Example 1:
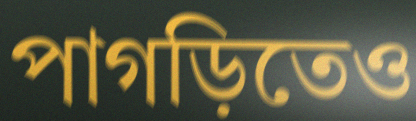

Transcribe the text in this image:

পাগড়িতেও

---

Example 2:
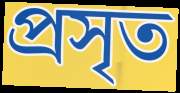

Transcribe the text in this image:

প্রসৃত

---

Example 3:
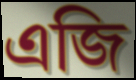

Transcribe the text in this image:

এজি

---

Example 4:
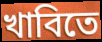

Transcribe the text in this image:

খাবিতে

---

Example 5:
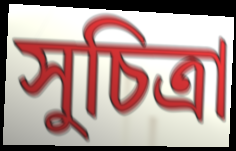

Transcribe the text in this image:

সুচিত্রা